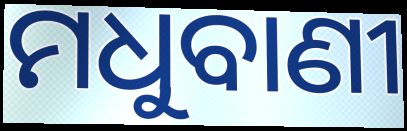
ମଧୁବାଣୀ